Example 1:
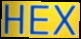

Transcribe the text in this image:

HEX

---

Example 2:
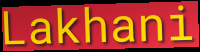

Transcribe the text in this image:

Lakhani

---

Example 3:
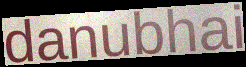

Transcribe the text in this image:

danubhai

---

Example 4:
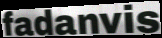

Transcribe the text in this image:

fadanvis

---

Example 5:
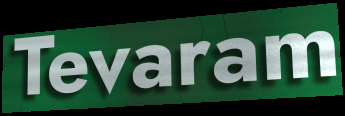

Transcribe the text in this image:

Tevaram